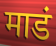
माडं